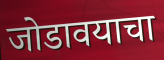
जोडावयाचा